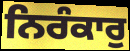
ਨਿਰੰਕਾਰੁ